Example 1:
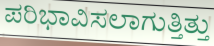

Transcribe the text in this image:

ಪರಿಭಾವಿಸಲಾಗುತ್ತಿತ್ತು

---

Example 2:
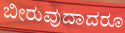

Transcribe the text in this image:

ಬೀರುವುದಾದರೂ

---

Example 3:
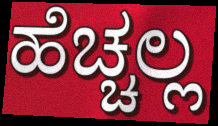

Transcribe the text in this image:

ಹೆಚ್ಚಲ್ಲ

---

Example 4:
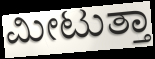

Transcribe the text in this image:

ಮೀಟುತ್ತಾ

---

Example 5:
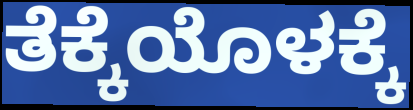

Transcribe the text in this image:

ತೆಕ್ಕೆಯೊಳಕ್ಕೆ